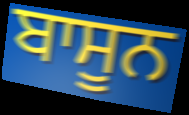
ਬਾਸੂਨ